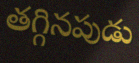
తగ్గినపుడు